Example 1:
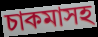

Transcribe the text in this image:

চাকমাসহ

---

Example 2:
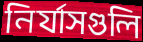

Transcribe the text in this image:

নির্যাসগুলি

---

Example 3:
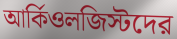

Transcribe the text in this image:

আর্কিওলজিস্টদের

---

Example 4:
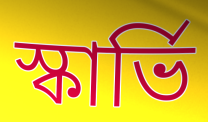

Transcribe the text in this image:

স্কার্ভি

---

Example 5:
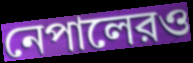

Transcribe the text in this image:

নেপালেরও